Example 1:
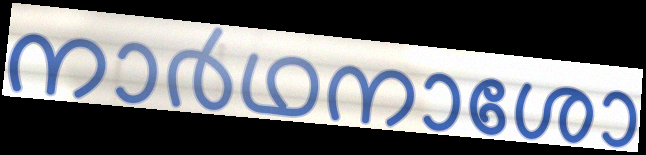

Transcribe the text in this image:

നാർഥനാശോ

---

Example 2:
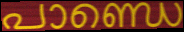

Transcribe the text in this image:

പാണ്ഡെ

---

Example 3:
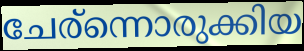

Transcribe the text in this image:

ചേര്ന്നൊരുക്കിയ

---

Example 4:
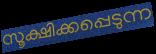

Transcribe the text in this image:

സൂക്ഷിക്കപ്പെടുന്ന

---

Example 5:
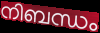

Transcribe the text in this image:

നിബന്ധം